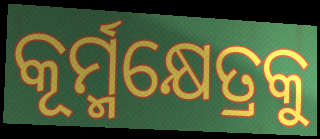
କୂର୍ମ୍ମକ୍ଷେତ୍ରକୁ